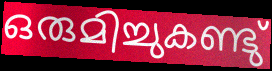
ഒരുമിച്ചുകണ്ടു്